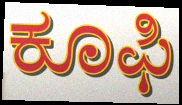
ಕೂಫಿ